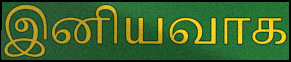
இனியவாக